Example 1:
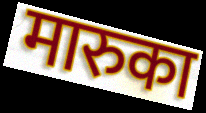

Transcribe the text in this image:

मारुका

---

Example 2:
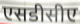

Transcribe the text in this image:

एसडीसीए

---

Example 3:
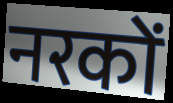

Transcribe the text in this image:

नरकों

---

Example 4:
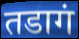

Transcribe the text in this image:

तडागं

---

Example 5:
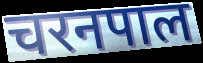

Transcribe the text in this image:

चरनपाल